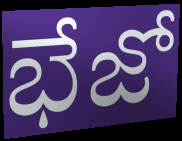
భేజో